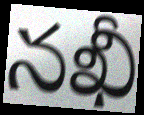
నఖీ